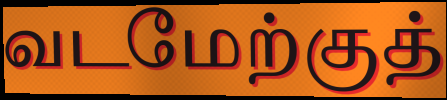
வடமேற்குத்